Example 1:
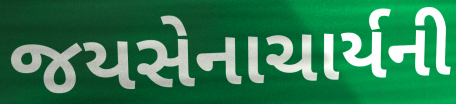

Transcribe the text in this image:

જયસેનાચાર્યની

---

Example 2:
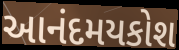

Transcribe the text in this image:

આનંદમયકોશ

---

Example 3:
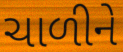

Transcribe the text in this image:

ચાળીને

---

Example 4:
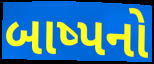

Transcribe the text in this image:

બાષ્પનો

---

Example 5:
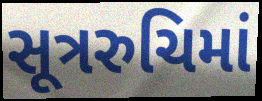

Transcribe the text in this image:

સૂત્રરુચિમાં